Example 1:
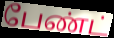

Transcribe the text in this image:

பேண்ட்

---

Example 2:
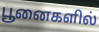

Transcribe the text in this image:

பூனைகளில்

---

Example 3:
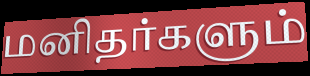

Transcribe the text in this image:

மனிதர்களும்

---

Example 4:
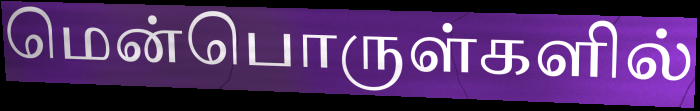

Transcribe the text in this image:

மென்பொருள்களில்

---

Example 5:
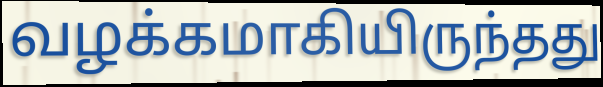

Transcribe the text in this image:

வழக்கமாகியிருந்தது